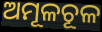
ଅମୂଳଚୂଳ